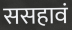
ससहावं